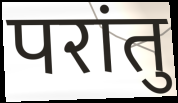
परांतु